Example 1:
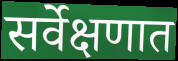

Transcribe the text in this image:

सर्वेक्षणात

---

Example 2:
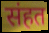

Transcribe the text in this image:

संहत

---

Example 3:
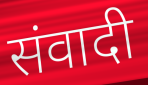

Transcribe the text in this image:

संवादी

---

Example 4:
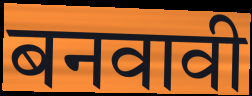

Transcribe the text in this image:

बनवावी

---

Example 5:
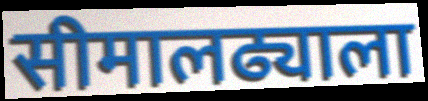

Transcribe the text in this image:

सीमालढ्याला